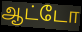
ஆட்டோ